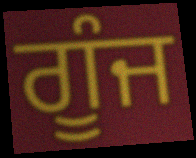
ਗੂੰਜ